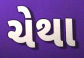
ચેથા